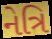
નેત્રિ